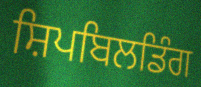
ਸ਼ਿਪਬਿਲਡਿੰਗ